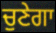
ਚੁਣੇਗਾ